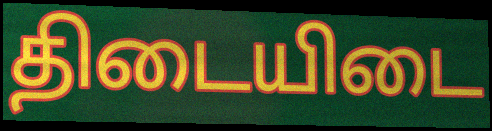
திடையிடை